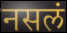
नसलं